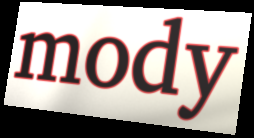
mody